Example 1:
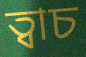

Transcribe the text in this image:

ত্বাচ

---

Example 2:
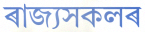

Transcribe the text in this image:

ৰাজ্যসকলৰ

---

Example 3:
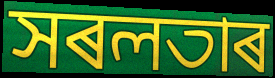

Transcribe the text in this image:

সৰলতাৰ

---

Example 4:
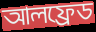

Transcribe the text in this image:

আলফ্ৰেড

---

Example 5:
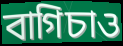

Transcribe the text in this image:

বাগিচাও